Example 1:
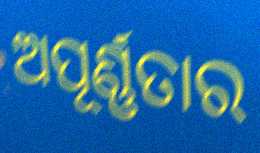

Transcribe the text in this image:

ଅପୂର୍ଣ୍ଣତାର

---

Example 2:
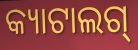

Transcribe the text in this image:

କ୍ୟାଟାଲଗ୍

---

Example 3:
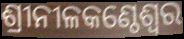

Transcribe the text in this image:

ଶ୍ରୀନୀଳକଣ୍ଠେଶ୍ଵର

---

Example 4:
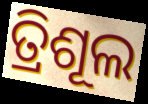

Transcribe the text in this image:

ତ୍ରିଶୂଲ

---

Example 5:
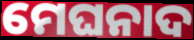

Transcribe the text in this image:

ମେଘନାଦ